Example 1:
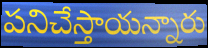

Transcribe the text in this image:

పనిచేస్తాయన్నారు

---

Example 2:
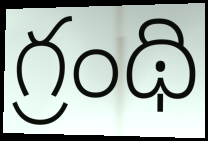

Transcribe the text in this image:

గ్రంథి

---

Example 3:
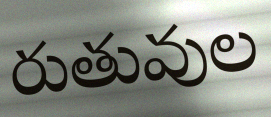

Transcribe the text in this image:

రుతువుల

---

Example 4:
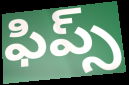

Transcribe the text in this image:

ఫిప్స్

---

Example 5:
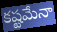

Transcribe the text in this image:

కష్టమేనా